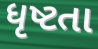
ધૃષ્ટતા